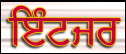
ਇੰਟਜਰ